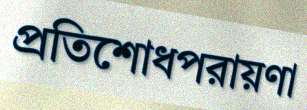
প্রতিশোধপরায়ণা